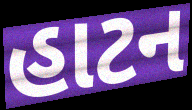
હાટન